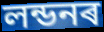
লন্ডনৰ